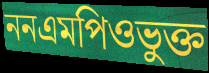
ননএমপিওভুক্ত